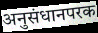
अनुसंधानपरक